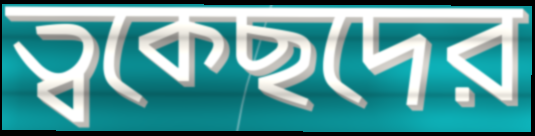
ত্বক্ছেদের